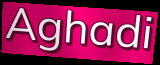
Aghadi